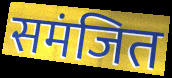
समंजित